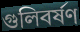
গুলিবর্ষণ